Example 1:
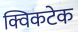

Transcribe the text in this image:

क्विकटेक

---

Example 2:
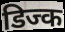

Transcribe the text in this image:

डिज्क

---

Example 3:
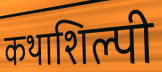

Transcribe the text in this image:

कथाशिल्पी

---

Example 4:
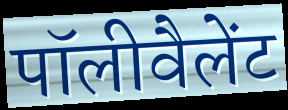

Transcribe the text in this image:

पॉलीवैलेंट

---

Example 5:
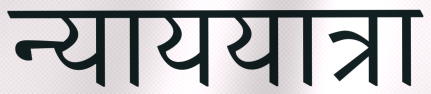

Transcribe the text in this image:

न्याययात्रा